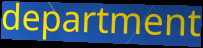
department